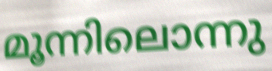
മൂന്നിലൊന്നു